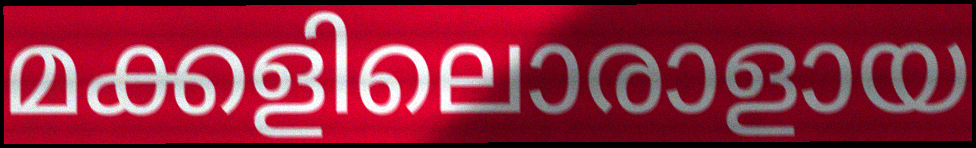
മക്കളിലൊരാളായ